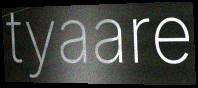
tyaare